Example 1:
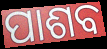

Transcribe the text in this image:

ପାଶବ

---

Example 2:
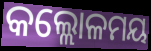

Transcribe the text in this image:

କଲ୍ଲୋଳମୟ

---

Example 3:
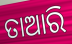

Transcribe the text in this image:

ତାଆରି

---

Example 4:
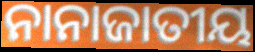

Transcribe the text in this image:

ନାନାଜାତୀୟ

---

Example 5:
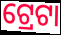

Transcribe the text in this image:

ଟ୍ରେଟା